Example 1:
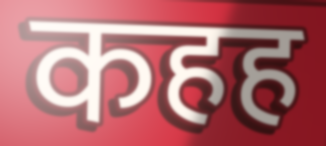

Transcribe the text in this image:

कहह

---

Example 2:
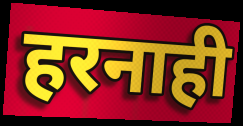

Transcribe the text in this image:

हरनाही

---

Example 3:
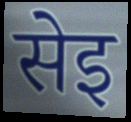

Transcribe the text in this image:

सेइ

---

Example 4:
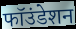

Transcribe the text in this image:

फॉउंडेशन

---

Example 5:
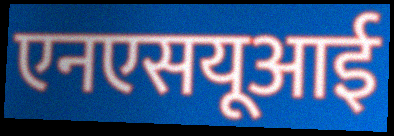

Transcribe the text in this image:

एनएसयूआई